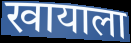
खायाला